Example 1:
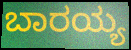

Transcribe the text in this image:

ಬಾರಯ್ಯ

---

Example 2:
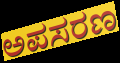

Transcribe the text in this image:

ಅಪಸರಣ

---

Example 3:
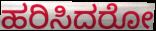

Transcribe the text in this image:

ಹರಿಸಿದರೋ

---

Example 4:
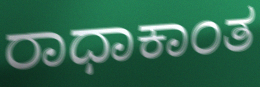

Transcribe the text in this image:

ರಾಧಾಕಾಂತ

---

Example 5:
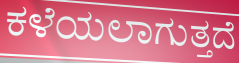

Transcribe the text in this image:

ಕಳೆಯಲಾಗುತ್ತದೆ